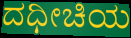
ದಧೀಚಿಯ